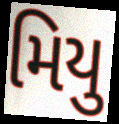
મિયુ